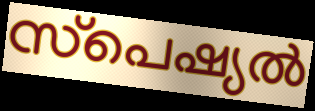
സ്‌പെഷ്യൽ